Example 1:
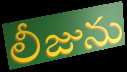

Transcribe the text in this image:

లీజును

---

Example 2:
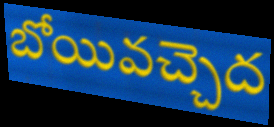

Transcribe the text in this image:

బోయివచ్చెద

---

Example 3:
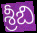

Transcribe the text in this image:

శ్రీబి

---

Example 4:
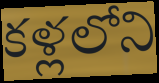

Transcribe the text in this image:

కళ్లలోని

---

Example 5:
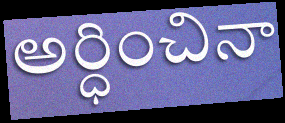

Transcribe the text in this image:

అర్ధించినా